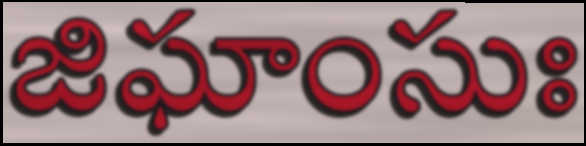
జిఘాంసుః